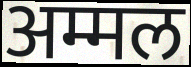
अम्मल